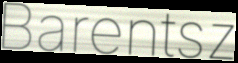
Barentsz